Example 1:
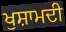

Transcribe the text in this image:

ਖੁਸ਼ਾਮਦੀ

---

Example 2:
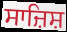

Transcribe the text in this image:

ਸਾਜ਼ਿਸ਼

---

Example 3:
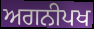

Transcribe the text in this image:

ਅਗਨੀਪਖ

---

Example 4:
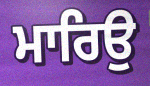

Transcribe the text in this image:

ਮਾਰਿਉ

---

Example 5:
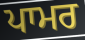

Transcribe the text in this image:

ਪਾਮਰ